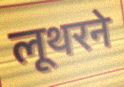
लूथरने